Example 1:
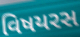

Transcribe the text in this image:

વિષયરસ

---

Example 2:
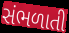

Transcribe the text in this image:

સંભળાતી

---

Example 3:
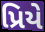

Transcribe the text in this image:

પ્રિયે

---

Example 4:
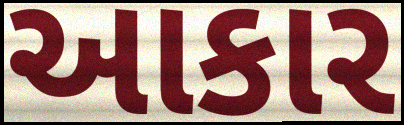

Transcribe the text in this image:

આકાર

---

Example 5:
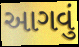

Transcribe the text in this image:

આગવું